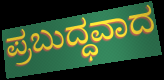
ಪ್ರಬುದ್ಧವಾದ